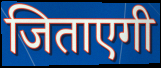
जिताएगी